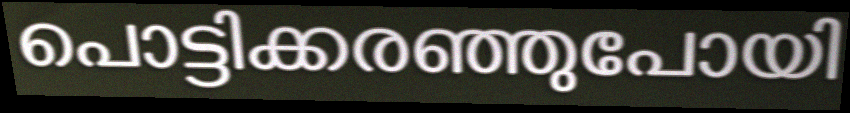
പൊട്ടിക്കരഞ്ഞുപോയി